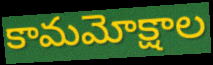
కామమోక్షాల